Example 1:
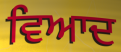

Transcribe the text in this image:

ਵਿਆਦ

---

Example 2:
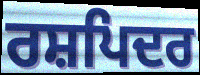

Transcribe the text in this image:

ਰਸ਼ਪਿਦਰ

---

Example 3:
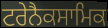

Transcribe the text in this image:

ਟਰੇਨੈਕਸਾਮਿਕ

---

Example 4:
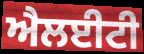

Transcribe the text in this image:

ਐਲਈਟੀ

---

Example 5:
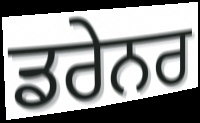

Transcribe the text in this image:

ਡਰੇਨਰ